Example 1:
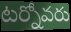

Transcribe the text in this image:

టర్నోవరు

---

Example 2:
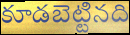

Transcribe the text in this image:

కూడబెట్టినది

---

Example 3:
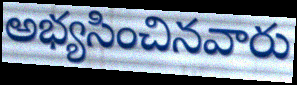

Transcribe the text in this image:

అభ్యసించినవారు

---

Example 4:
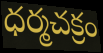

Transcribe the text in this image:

ధర్మచక్రం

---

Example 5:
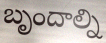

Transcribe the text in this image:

బృందాల్ని